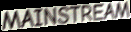
MAINSTREAM